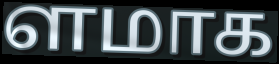
ளமாக